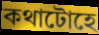
কথাটোহে